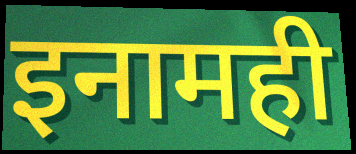
इनामही